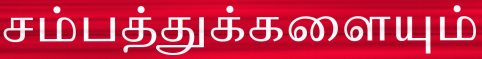
சம்பத்துக்களையும்